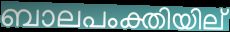
ബാലപംക്തിയില്